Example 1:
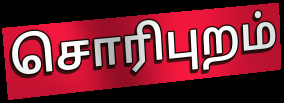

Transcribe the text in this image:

சொரிபுறம்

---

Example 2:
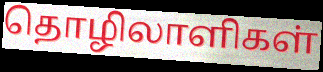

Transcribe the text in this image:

தொழிலாளிகள்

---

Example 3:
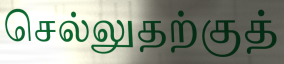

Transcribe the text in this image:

செல்லுதற்குத்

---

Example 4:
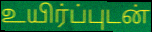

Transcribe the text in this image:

உயிர்ப்புடன்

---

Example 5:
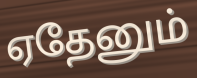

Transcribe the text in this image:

ஏதேனும்